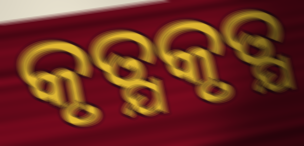
କୃତ୍ଯକୃତ୍ଯ